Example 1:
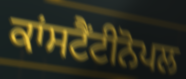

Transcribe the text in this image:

ਕਾਂਸਟੈਂਟੀਨੋਪਲ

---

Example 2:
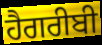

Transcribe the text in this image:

ਹੈਗਰੀਬੀ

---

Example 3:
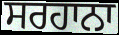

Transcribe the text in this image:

ਸਰਹਾਨਾ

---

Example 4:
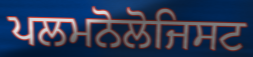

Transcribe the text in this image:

ਪਲਮਨੋਲੋਜਿਸਟ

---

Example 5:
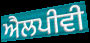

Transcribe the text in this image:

ਐਲਪੀਵੀ